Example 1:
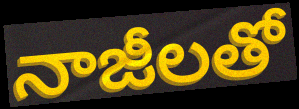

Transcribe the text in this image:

నాజీలతో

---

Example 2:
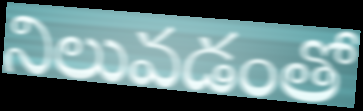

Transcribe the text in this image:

నిలువడంతో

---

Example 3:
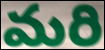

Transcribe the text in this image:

మరి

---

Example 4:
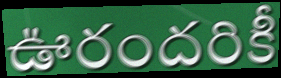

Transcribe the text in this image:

ఊరందరికీ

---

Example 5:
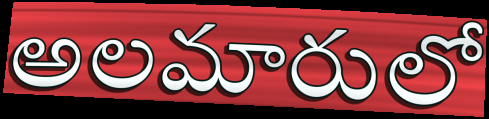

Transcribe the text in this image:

అలమారులో